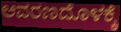
ಆವರಣದೊಳಕ್ಕೆ